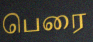
பெரை